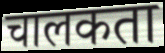
चालकता